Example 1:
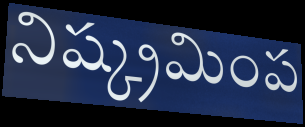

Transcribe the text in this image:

నిష్క్రమింప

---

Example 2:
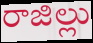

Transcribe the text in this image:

రాజిల్లు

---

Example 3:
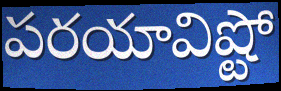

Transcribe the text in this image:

పరయావిష్టో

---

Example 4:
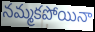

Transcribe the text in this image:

నమ్మకపోయినా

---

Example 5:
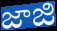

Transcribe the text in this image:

జాజి